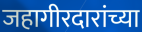
जहागीरदारांच्या